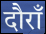
दौराँ